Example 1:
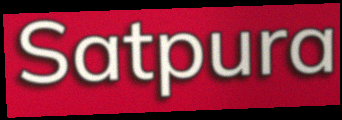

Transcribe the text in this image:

Satpura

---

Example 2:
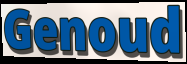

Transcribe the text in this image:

Genoud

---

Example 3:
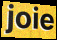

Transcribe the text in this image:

joie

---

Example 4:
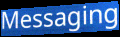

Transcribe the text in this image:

Messaging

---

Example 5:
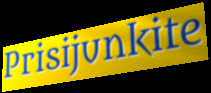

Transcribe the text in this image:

Prisijunkite